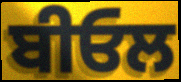
ਬੀਓਲ